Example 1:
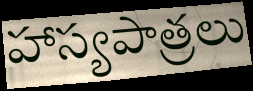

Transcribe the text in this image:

హాస్యపాత్రలు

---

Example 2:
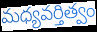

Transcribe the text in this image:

మధ్యవర్తిత్వం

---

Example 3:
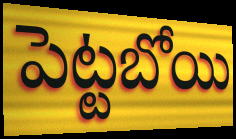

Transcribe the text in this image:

పెట్టబోయి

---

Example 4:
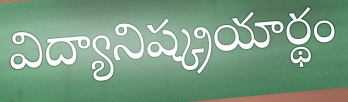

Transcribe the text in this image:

విద్యానిష్క్రయార్థం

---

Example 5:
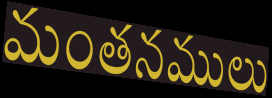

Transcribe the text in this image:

మంతనములు